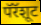
पॅरॅशूट